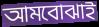
আমবোঝাই